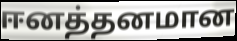
ஈனத்தனமான